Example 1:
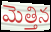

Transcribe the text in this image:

మెత్తిన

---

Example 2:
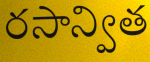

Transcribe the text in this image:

రసాన్విత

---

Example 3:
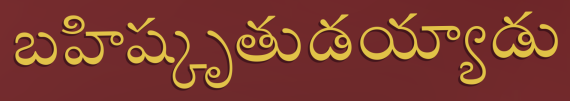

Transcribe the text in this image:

బహిష్కృతుడయ్యాడు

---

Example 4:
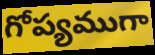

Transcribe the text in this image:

గోప్యముగా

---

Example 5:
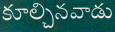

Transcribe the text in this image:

కూల్చినవాడు